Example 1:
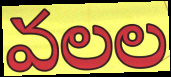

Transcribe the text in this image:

వలల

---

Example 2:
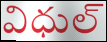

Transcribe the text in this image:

విధుల్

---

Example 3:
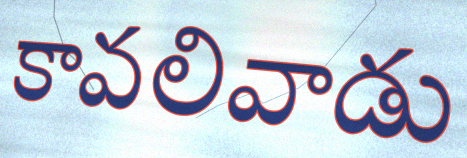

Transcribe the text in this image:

కావలివాడు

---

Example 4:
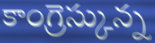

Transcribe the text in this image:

కాంగ్రెస్కున్న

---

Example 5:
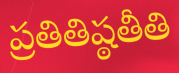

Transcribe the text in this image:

ప్రతితిష్ఠతీతి